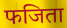
फजिता